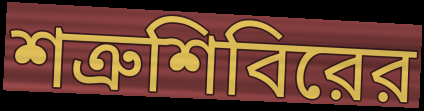
শত্রুশিবিরের